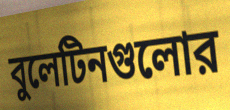
বুলেটিনগুলোর